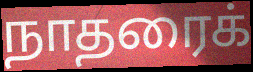
நாதரைக்